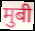
मुबी